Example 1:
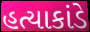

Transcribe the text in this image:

હત્યાકાંડે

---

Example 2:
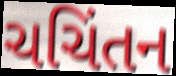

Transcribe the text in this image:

ચચિંતન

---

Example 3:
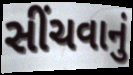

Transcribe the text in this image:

સીંચવાનું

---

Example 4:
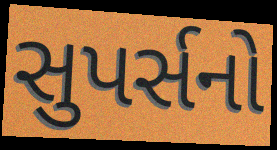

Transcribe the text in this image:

સુપર્સનો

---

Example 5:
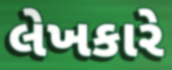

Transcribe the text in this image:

લેખકારે